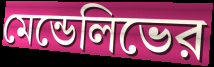
মেন্ডেলিভের